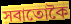
সবাতোকৈ